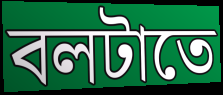
বলটাতে